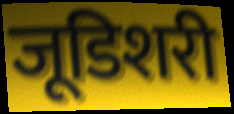
जूडिशरी